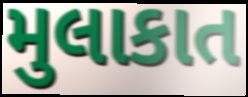
મુલાકાત